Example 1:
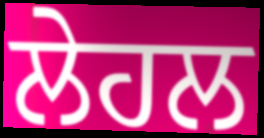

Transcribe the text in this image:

ਲੇਹਲ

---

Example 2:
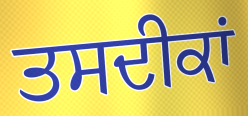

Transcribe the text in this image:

ਤਸਦੀਕਾਂ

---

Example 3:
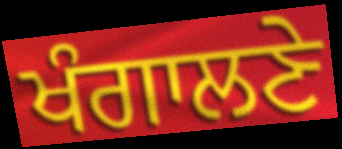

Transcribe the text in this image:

ਖੰਗਾਲਣੇ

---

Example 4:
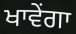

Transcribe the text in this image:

ਖਾਵੇਂਗਾ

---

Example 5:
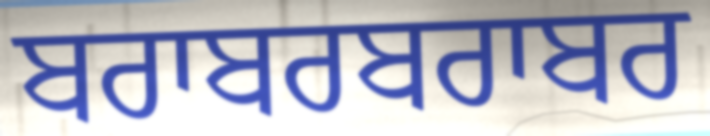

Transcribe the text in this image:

ਬਰਾਬਰਬਰਾਬਰ